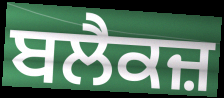
ਬਲੈਕਜ਼